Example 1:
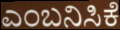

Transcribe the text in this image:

ಎಂಬನಿಸಿಕೆ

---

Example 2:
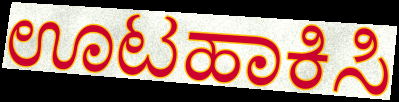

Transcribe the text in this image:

ಊಟಹಾಕಿಸಿ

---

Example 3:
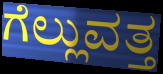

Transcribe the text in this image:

ಗೆಲ್ಲುವತ್ತ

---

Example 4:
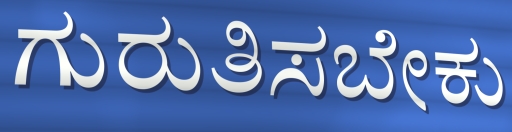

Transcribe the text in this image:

ಗುರುತಿಸಬೇಕು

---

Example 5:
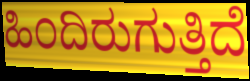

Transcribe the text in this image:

ಹಿಂದಿರುಗುತ್ತಿದೆ